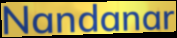
Nandanar